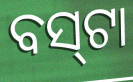
ବସ୍‍ଟା